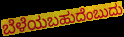
ಬೆಳೆಯಬಹುದೆಂಬುದು